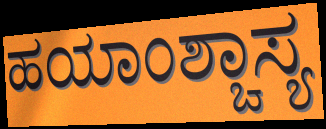
ಹಯಾಂಶ್ಚಾಸ್ಯ